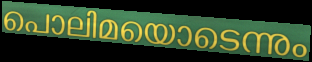
പൊലിമയൊടെന്നും